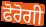
ਫੋਰੋਗੀ